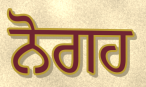
ਨੋਗਹ